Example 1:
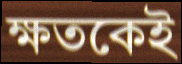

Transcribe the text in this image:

ক্ষতকেই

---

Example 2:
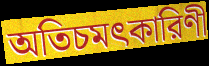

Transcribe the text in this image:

অতিচমৎকারিণী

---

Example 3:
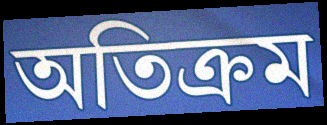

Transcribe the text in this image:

অতিক্রম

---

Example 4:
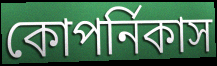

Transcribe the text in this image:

কোপর্নিকাস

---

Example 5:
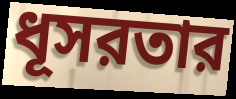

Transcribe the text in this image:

ধূসরতার